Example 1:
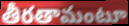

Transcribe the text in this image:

తీరతామంటూ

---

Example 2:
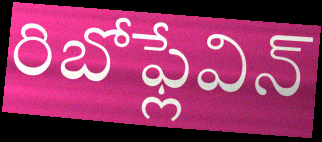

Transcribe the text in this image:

రిబోఫ్లేవిన్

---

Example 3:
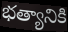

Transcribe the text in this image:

భత్యానికి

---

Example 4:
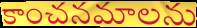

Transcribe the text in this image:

కాంచనమాలను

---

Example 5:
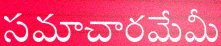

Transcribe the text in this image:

సమాచారమేమీ